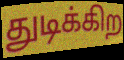
துடிக்கிற